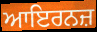
ਆਇਰਨਜ਼